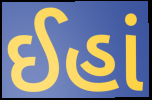
ઈહાં